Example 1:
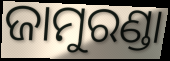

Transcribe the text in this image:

ଜାମୁରଣ୍ଡା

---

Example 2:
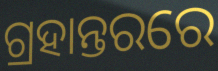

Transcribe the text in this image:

ଗ୍ରହାନ୍ତରରେ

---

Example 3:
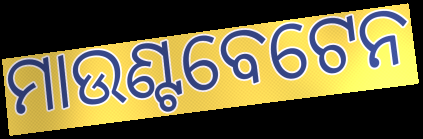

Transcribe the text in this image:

ମାଉଣ୍ଟବେଟେନ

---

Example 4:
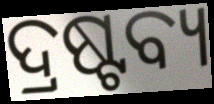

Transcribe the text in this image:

ଦ୍ରଷ୍ଟବ୍ୟ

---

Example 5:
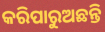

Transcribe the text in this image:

କରିପାରୁଅଛନ୍ତି